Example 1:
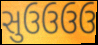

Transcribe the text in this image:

સુઉઉઉઉ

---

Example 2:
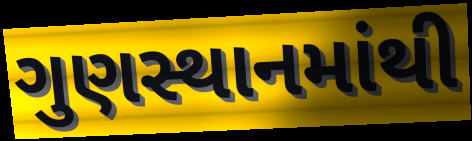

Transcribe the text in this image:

ગુણસ્થાનમાંથી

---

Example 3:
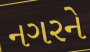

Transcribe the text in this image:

નગરને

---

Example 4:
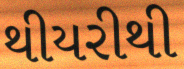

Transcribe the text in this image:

થીયરીથી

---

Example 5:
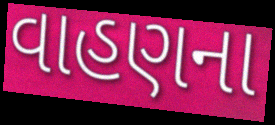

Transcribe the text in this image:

વાહણના